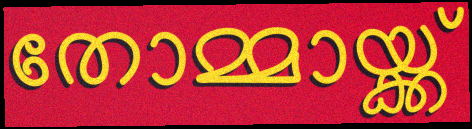
തോമ്മായ്ക്ക്